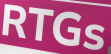
RTGs